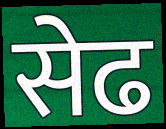
सेढ